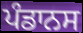
ਪੰਡਾਨਸ